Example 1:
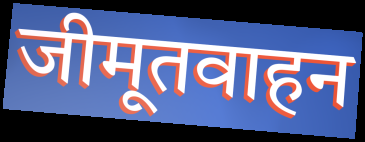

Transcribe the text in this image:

जीमूतवाहन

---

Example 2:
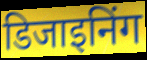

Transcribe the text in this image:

डिजाइनिंग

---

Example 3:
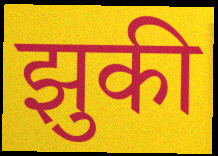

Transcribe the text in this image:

झुकी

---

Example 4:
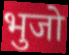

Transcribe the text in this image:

भुजो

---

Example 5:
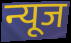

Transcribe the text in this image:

न्यूज